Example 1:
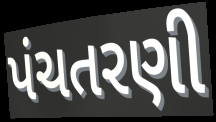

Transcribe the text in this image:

પંચતરણી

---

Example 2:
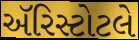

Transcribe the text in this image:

ઍરિસ્ટોટલે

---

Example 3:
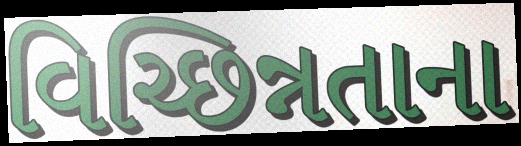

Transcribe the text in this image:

વિચ્છિન્નતાના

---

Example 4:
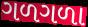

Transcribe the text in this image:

ગળગળા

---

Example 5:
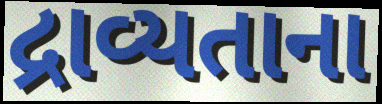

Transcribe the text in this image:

દ્રાવ્યતાના